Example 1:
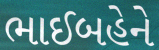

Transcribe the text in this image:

ભાઈબહેને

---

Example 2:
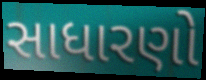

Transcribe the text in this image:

સાધારણો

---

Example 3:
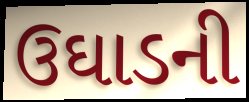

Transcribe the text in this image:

ઉઘાડની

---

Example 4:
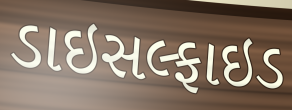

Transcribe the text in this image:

ડાઇસલ્ફાઇડ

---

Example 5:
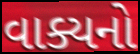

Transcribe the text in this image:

વાક્યનો